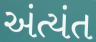
અંત્યંત